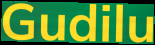
Gudilu